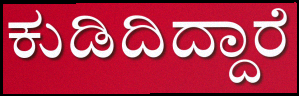
ಕುಡಿದಿದ್ದಾರೆ